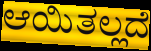
ಆಯಿತಲ್ಲದೆ